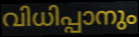
വിധിപ്പാനും